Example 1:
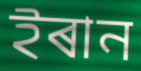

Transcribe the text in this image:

ইৰান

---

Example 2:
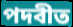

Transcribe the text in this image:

পদবীত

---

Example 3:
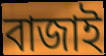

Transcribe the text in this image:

বাজাই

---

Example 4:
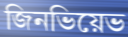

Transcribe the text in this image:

জিনভিয়েভ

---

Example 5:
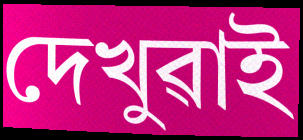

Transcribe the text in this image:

দেখুৱাই